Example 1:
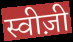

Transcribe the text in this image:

स्वीज़ी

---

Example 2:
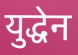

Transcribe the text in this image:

युद्धेन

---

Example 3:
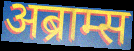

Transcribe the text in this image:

अब्राम्स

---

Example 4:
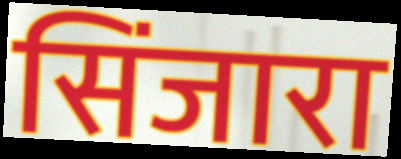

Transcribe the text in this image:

सिंजारा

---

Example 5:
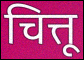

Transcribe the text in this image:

चित्तू